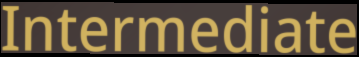
Intermediate